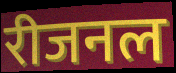
रीजनल